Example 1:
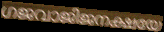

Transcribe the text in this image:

ഗജവാജിജനക്ഷയേ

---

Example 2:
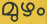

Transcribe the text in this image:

മുഴം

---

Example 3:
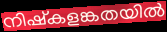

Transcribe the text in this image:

നിഷ്കളങ്കതയിൽ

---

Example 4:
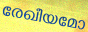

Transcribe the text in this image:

രേഖീയമോ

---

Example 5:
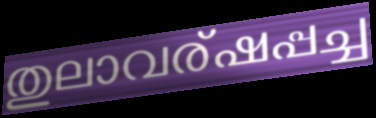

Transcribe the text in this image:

തുലാവര്ഷപ്പച്ച